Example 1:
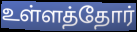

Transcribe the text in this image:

உள்ளத்தோர்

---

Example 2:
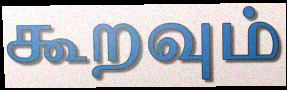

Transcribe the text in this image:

கூறவும்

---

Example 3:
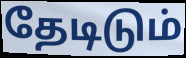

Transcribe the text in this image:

தேடிடும்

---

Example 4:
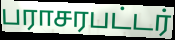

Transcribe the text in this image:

பராசரபட்டர்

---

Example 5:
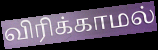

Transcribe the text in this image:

விரிக்காமல்